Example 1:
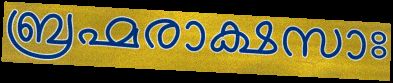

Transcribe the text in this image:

ബ്രഹ്മരാക്ഷസാഃ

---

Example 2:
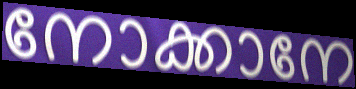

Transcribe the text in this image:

നോക്കാനേ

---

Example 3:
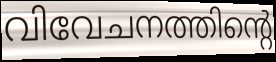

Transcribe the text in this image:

വിവേചനത്തിന്റെ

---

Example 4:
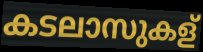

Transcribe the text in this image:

കടലാസുകള്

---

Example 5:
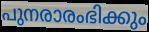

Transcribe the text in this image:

പുനരാരംഭിക്കും